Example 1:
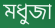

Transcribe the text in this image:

মধুজা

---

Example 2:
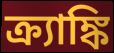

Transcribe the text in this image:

ক্র্যাঙ্কি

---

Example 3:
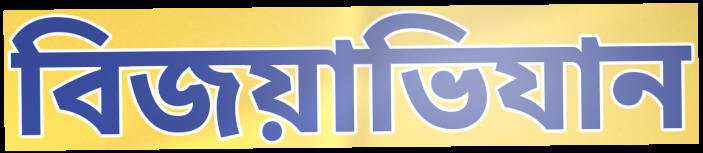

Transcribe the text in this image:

বিজয়াভিযান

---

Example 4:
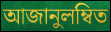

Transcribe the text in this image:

আজানুলম্বিত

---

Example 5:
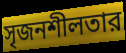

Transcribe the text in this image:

সৃজনশীলতার